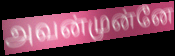
அவன்முன்னே